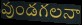
వుండగలనా